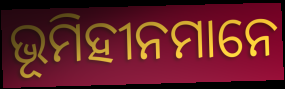
ଭୂମିହୀନମାନେ